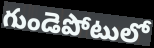
గుండెపోటులో